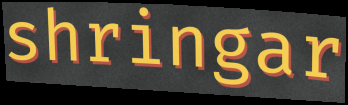
shringar